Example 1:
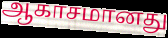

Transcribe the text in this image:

ஆகாசமானது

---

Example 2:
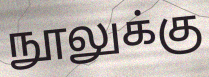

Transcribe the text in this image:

நூலுக்கு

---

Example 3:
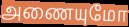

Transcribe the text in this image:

அணையுமோ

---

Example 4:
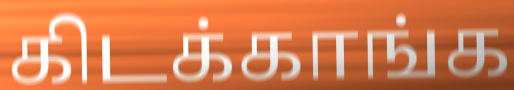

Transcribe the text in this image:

கிடக்காங்க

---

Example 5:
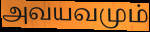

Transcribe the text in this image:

அவயவமும்